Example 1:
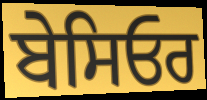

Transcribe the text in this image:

ਬੇਸਿਓਰ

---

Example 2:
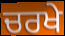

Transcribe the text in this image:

ਚਰਖੇ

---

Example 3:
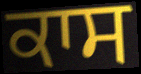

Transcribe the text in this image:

ਕਾਸ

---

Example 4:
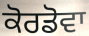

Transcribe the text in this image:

ਕੋਰਡੋਵਾ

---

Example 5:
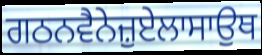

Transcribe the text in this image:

ਗਠਨਵੈਨੇਜ਼ੁਏਲਾਸਾਉਥ